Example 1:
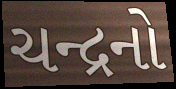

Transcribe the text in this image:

ચન્દ્રનો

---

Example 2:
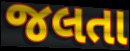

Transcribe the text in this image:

જલતા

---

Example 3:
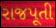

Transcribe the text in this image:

રાજપૂતી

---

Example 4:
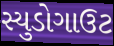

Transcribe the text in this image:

સ્યુડોગાઉટ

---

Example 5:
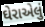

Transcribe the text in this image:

ઘેરાએલું